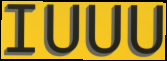
IUUU